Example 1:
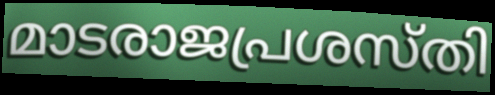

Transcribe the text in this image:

മാടരാജപ്രശസ്തി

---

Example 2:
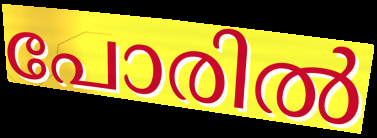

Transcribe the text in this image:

പോരിൽ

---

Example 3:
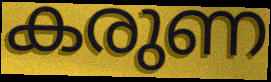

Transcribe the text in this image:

കരുണ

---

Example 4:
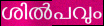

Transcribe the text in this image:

ശിൽപവും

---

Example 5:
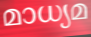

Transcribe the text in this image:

മാധ്യമ